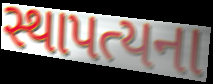
સ્થાપત્યના